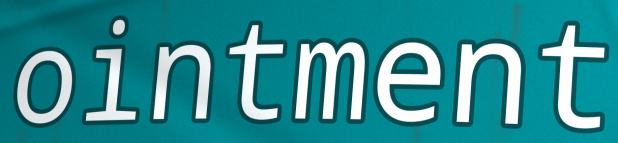
ointment